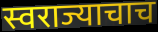
स्वराज्याचाच